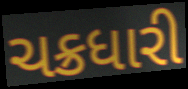
ચક્રધારી